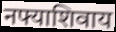
नफ्याशिवाय